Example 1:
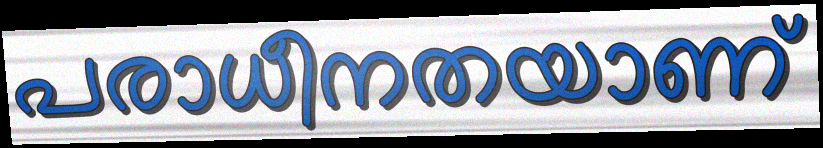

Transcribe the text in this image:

പരാധീനതയാണ്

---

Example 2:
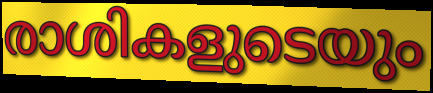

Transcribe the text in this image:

രാശികളുടെയും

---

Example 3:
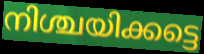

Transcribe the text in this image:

നിശ്ചയിക്കട്ടെ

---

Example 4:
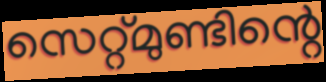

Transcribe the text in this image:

സെറ്റ്മുണ്ടിന്റെ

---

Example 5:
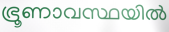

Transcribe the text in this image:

ഭ്രൂണാവസ്ഥയിൽ